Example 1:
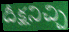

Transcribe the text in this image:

దీక్షనిచ్చి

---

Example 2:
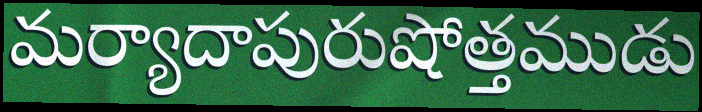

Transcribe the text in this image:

మర్యాదాపురుషోత్తముడు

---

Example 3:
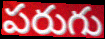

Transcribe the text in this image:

పరుగు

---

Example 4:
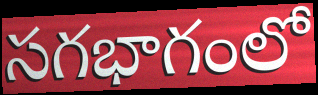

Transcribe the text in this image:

సగభాగంలో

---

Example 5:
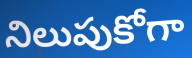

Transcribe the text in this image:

నిలుపుకోగా